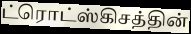
ட்ரொட்ஸ்கிசத்தின்